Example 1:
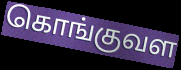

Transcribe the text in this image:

கொங்குவள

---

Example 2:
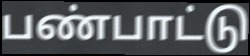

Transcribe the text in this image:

பண்பாட்டு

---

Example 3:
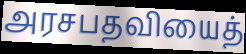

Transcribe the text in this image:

அரசபதவியைத்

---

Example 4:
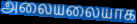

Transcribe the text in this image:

அலையலையாக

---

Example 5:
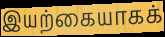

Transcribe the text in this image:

இயற்கையாகக்